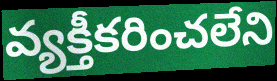
వ్యక్తీకరించలేని